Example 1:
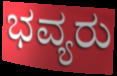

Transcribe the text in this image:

ಭವ್ಯರು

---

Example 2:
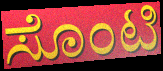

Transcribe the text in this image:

ಸೊಂಟಿ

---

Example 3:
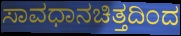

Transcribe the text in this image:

ಸಾವಧಾನಚಿತ್ತದಿಂದ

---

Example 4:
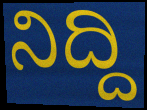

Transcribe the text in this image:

ನಿದ್ದಿ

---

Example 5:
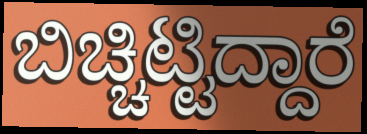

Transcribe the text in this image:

ಬಿಚ್ಚಿಟ್ಟಿದ್ದಾರೆ